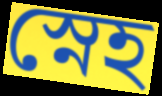
স্নেহ